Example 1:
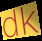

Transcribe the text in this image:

dk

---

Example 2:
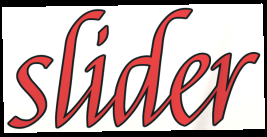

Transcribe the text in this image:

slider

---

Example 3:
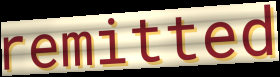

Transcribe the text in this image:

remitted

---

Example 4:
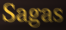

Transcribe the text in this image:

Sagas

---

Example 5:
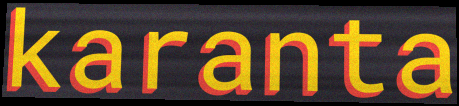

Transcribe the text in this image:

karanta